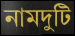
নামদুটি